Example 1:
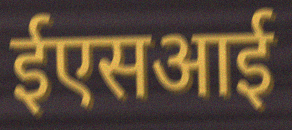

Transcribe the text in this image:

ईएसआई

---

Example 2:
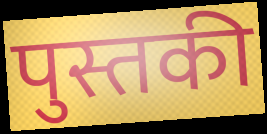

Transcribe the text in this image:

पुस्तकी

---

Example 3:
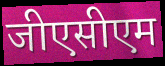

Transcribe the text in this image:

जीएसीएम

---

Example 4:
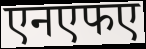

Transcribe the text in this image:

एनएफए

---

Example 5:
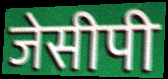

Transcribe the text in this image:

जेसीपी